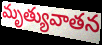
మృత్యువాతన